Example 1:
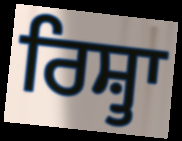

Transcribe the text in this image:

ਰਿਸ਼੍ਤਾ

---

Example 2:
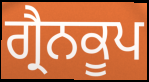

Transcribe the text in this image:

ਗ੍ਰੈਨਕੂਪ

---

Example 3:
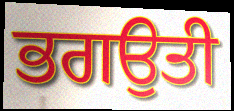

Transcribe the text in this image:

ਭਗਉਤੀ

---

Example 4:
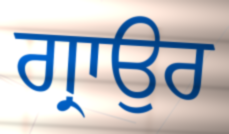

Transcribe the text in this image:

ਗ੍ਰਾਉਰ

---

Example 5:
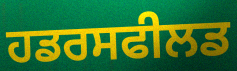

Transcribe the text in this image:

ਹਡਰਸਫੀਲਡ